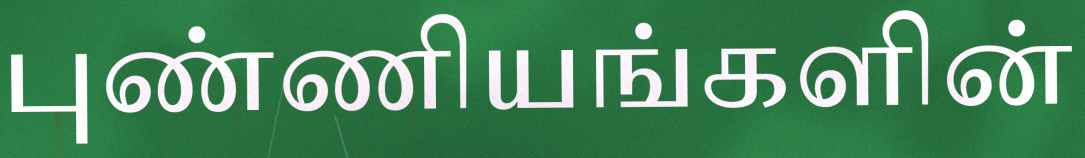
புண்ணியங்களின்